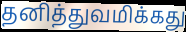
தனித்துவமிக்கது